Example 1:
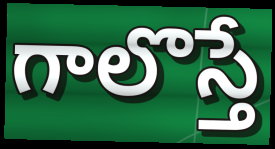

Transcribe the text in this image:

గాలొస్తే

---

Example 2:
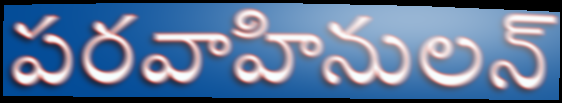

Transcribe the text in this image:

పరవాహినులన్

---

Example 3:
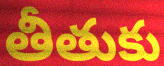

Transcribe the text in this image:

తీతుకు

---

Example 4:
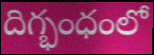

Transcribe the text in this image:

దిగ్భంధంలో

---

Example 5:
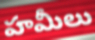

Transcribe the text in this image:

హమీలు